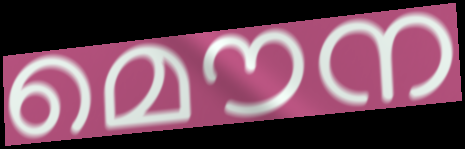
മൌന